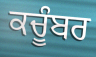
ਕਚੂੰਬਰ